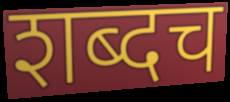
शब्दच